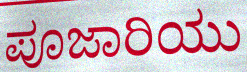
ಪೂಜಾರಿಯು